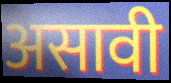
असावी